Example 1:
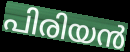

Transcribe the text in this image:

പിരിയൻ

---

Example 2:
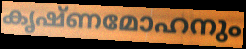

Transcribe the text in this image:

കൃഷ്ണമോഹനും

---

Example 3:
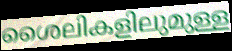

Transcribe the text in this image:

ശൈലികളിലുമുള്ള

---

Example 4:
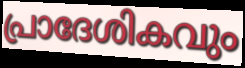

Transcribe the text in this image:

പ്രാദേശികവും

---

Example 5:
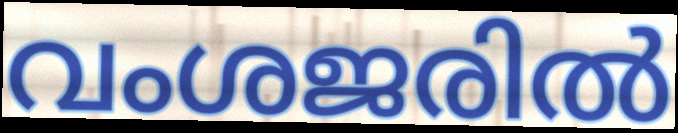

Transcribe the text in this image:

വംശജരിൽ